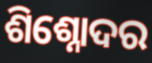
ଶିଶ୍ନୋଦର